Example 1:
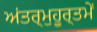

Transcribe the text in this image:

ਅਂਤਰ੍ਮੁਹੂਰ੍ਤਮੇਂ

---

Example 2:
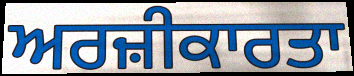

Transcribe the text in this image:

ਅਰਜ਼ੀਕਾਰਤਾ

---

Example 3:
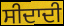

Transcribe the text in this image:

ਸੀਦਾਦੀ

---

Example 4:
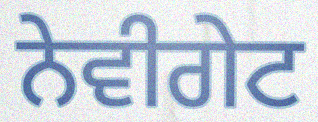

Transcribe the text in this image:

ਨੇਵੀਗੇਟ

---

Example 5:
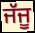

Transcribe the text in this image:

ਜੱਜੂ